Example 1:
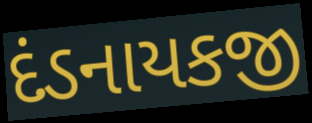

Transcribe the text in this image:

દંડનાયકજી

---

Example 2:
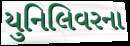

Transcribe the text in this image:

યુનિલિવરના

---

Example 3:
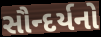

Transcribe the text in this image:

સૌન્દર્યનો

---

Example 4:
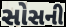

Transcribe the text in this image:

સોસની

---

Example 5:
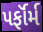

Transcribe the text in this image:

પર્ફૉર્મ